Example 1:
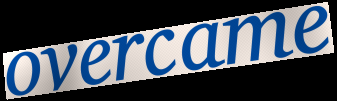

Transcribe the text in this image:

overcame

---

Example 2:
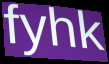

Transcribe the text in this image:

fyhk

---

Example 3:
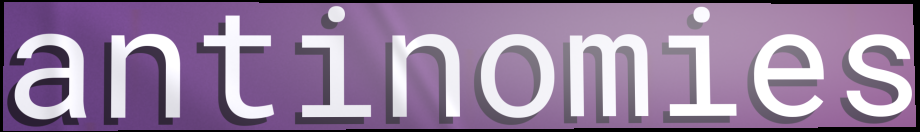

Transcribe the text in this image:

antinomies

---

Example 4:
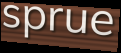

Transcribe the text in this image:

sprue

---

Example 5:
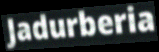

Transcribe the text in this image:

Jadurberia